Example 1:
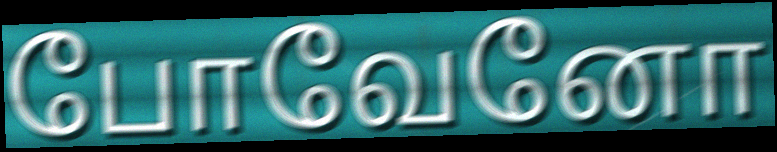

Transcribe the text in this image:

போவேனோ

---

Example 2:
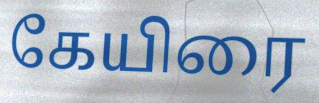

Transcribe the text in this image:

கேயிரை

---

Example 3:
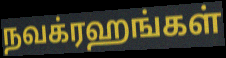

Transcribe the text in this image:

நவக்ரஹங்கள்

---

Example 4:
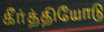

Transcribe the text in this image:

கீர்த்தியோடு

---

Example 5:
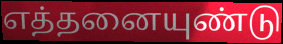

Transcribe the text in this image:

எத்தனையுண்டு